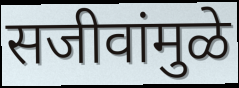
सजीवांमुळे